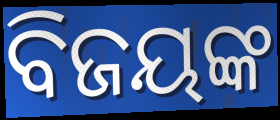
ବିଜୟଙ୍କ